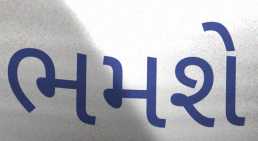
ભમશે